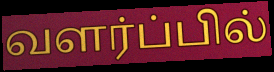
வளர்ப்பில்